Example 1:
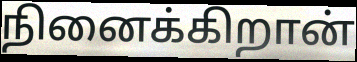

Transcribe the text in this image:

நினைக்கிறான்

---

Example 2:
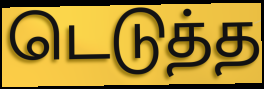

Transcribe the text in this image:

டெடுத்த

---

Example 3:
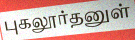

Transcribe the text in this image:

புகலூர்தனுள்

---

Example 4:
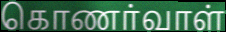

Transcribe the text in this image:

கொணர்வாள்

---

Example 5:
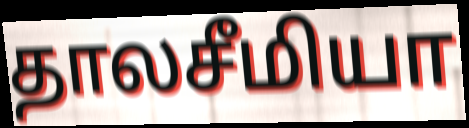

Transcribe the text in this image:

தாலசீமியா